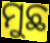
ମୁଛ